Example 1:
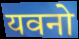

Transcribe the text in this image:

यवनो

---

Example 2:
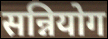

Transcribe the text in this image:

सन्नियोग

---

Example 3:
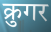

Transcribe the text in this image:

क्रुगर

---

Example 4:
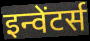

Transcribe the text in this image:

इन्वेंटर्स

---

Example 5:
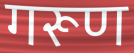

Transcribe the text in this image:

गरूण